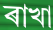
ৰাখা